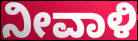
ನೀವಾಳಿ